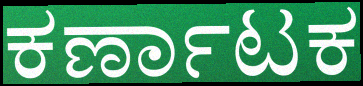
ಕರ್ಣಾಟಕ